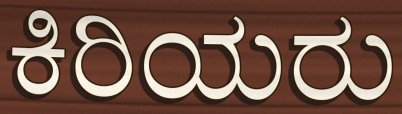
ಕಿರಿಯರು